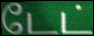
டேட்